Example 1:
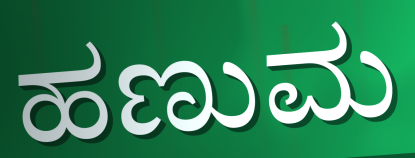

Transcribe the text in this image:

ಹಣುಮ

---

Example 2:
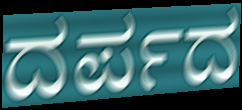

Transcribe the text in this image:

ದರ್ಪದ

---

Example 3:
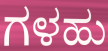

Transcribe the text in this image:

ಗಳಹು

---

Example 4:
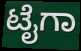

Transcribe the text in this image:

ಟೈಗಾ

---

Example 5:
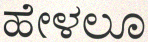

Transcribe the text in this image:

ಹೇಳಲೂ